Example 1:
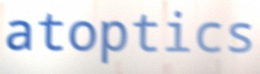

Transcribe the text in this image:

atoptics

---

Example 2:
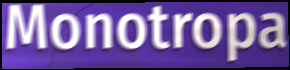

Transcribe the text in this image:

Monotropa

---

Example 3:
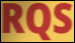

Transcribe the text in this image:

RQS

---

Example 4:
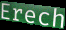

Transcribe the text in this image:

Erech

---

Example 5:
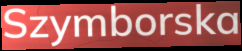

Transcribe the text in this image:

Szymborska